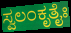
ಸ್ವಲಂಕೃತೈಃ